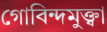
গোবিন্দমুক্ত্বা